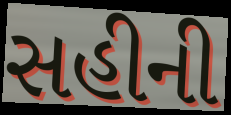
સહીની